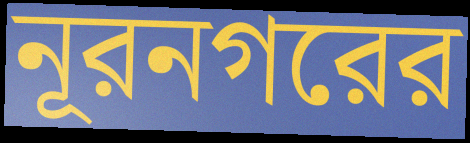
নূরনগরের